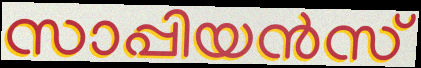
സാപ്പിയൻസ്